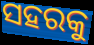
ସହରକୁ